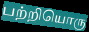
பற்றியொரு